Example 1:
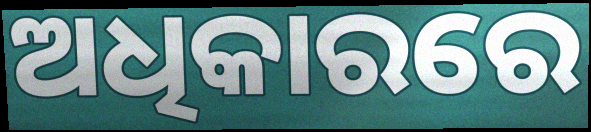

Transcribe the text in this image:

ଅଧିକାରରେ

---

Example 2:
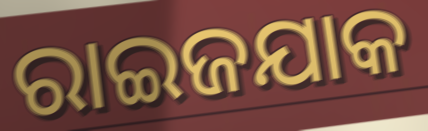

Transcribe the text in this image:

ରାଇଜଯାକ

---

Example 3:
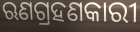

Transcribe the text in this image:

ଋଣଗ୍ରହଣକାରୀ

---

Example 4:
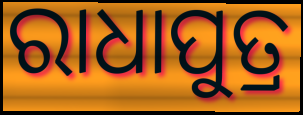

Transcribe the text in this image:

ରାଧାପୁତ୍ର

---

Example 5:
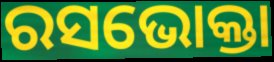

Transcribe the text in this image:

ରସଭୋକ୍ତା